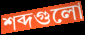
শব্দগুলো